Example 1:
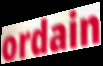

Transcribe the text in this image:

ordain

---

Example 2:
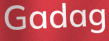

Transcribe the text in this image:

Gadag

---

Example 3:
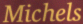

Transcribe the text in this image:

Michels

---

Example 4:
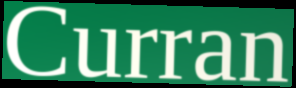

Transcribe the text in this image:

Curran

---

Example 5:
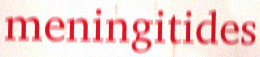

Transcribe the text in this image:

meningitides